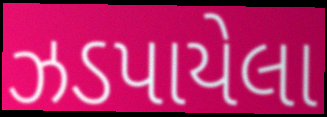
ઝડપાયેલા